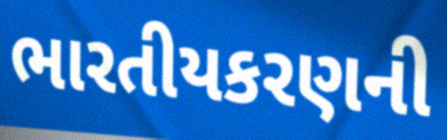
ભારતીયકરણની